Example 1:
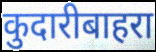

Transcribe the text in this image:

कुदारीबाहरा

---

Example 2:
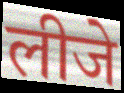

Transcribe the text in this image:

लीजे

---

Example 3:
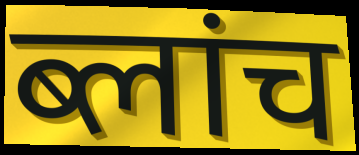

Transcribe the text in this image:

ब्लांच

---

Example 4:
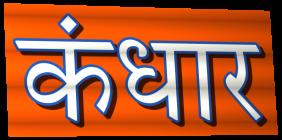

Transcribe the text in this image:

कंधार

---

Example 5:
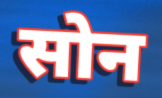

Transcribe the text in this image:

सोन